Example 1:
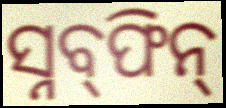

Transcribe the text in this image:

ସ୍ନବ୍‍ଫିନ୍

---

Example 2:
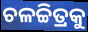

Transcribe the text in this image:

ଚଳଚ୍ଚିତ୍ରକୁ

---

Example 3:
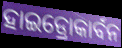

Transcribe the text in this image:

ହାଇଡ୍ରୋକାର୍ବନ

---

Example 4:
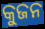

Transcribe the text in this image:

କୁଜନ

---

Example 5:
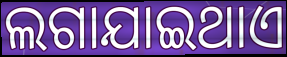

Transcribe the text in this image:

ଲଗାଯାଇଥାଏ